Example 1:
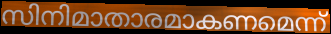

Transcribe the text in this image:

സിനിമാതാരമാകണമെന്ന്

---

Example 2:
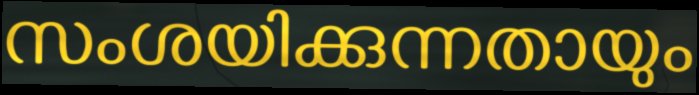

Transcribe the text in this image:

സംശയിക്കുന്നതായും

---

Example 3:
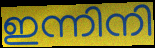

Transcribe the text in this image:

ഇന്നിനി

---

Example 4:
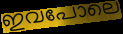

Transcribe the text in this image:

ഇവപോലെ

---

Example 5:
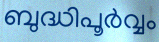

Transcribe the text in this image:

ബുദ്ധിപൂർവ്വം